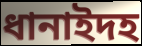
ধানাইদহ